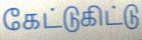
கேட்டுகிட்டு